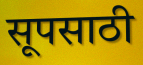
सूपसाठी